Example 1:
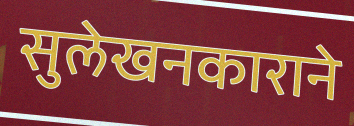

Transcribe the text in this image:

सुलेखनकाराने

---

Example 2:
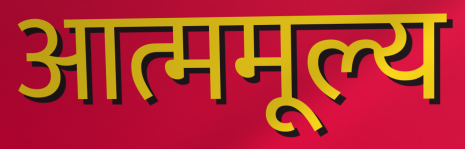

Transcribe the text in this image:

आत्ममूल्य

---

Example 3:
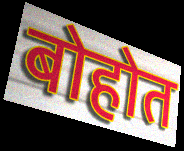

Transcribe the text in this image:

बोहोत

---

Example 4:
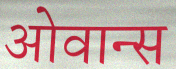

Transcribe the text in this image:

ओवान्स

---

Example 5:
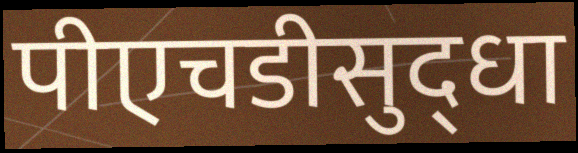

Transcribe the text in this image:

पीएचडीसुद्धा